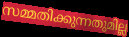
സമ്മതിക്കുന്നതുമില്ല